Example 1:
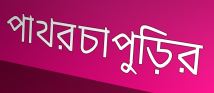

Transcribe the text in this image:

পাথরচাপুড়ির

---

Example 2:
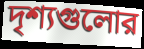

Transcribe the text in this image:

দৃশ্যগুলোর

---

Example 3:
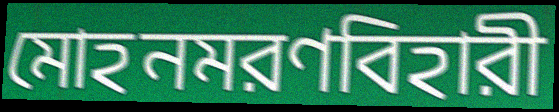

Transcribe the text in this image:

মোহনমরণবিহারী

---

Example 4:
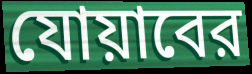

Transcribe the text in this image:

যোয়াবের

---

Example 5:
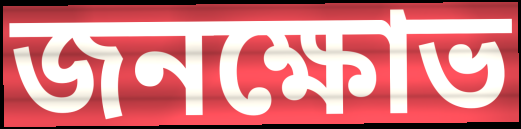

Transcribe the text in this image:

জনক্ষোভ